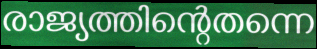
രാജ്യത്തിന്റെതന്നെ